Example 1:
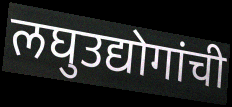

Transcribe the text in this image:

लघुउद्योगांची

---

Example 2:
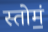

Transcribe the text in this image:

स्तोमं॒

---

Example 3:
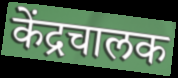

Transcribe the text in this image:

केंद्रचालक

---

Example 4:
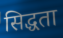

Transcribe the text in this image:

सिद्धता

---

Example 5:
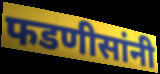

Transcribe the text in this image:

फडणीसांनी